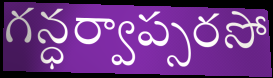
గన్ధర్వాప్సరసో